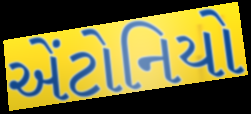
એંટોનિયો